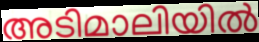
അടിമാലിയിൽ